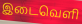
இடைவெளி